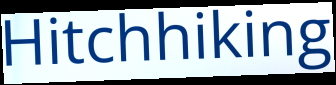
Hitchhiking